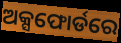
ଅକ୍ସଫୋର୍ଡରେ